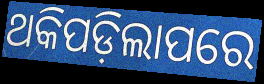
ଥକିପଡ଼ିଲାପରେ